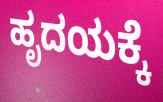
ಹೃದಯಕ್ಕೆ